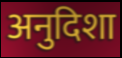
अनुदिशा